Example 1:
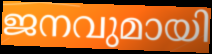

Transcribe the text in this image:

ജനവുമായി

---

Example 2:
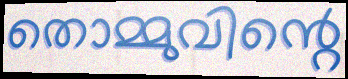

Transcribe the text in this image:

തൊമ്മുവിന്റെ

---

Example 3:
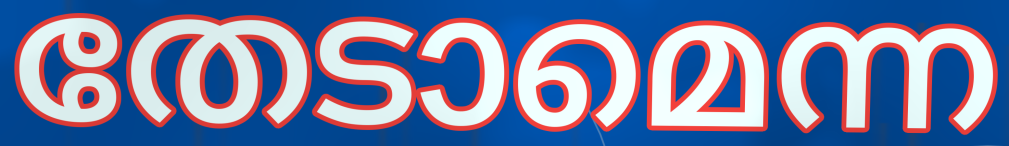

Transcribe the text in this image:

തേടാമെന്ന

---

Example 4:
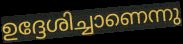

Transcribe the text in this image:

ഉദ്ദേശിച്ചാണെന്നു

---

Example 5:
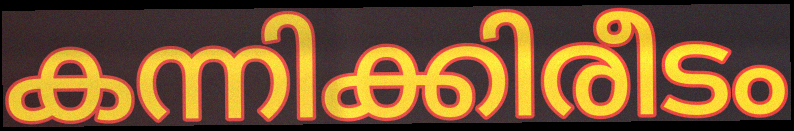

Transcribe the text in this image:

കന്നിക്കിരീടം